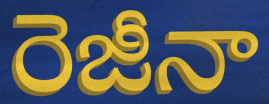
రెజీనా